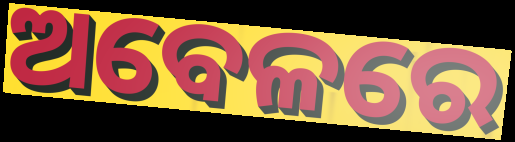
ଅବେଳରେ